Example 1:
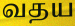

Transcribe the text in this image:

வதய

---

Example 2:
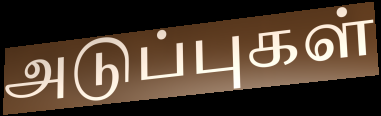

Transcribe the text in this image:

அடுப்புகள்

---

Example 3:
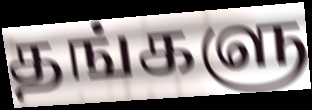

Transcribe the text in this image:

தங்களு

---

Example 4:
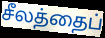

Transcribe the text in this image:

சீலத்தைப்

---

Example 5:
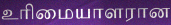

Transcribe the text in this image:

உரிமையாளரான